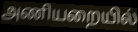
அணியறையில்